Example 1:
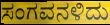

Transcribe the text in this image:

ಸಂಗವನಳಿದು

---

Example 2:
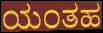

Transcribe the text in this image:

ಯಂತಹ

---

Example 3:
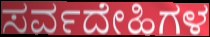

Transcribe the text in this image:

ಸರ್ವದೇಹಿಗಳ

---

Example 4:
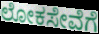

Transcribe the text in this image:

ಲೋಕಸೇವೆಗೆ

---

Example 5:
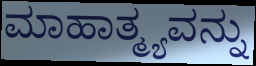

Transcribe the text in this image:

ಮಾಹಾತ್ಮ್ಯವನ್ನು